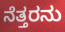
ನೆತ್ತರನು